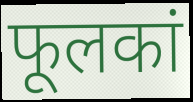
फूलकां